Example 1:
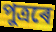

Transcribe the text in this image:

পুত্ৰৰে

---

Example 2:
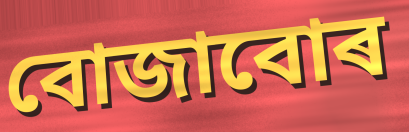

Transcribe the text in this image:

বোজাবোৰ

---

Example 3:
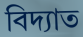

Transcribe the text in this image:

বিদ্যাত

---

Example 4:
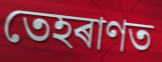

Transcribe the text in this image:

তেহৰাণত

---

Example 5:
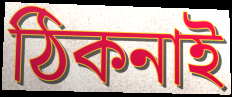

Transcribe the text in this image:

ঠিকনাই